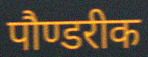
पौण्डरीक